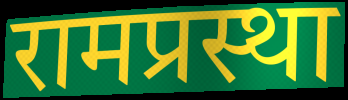
रामप्रस्था